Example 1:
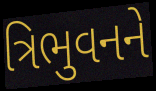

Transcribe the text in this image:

ત્રિભુવનને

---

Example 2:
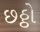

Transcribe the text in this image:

છઠ્ઠો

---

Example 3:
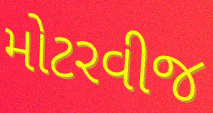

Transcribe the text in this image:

મોટરવીજ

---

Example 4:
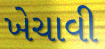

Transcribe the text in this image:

ખેચાવી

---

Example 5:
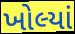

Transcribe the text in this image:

ખોલ્યાં